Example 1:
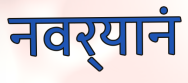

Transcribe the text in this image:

नवर्‍यानं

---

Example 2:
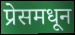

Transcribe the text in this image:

प्रेसमधून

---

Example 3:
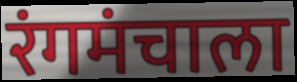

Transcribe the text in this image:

रंगमंचाला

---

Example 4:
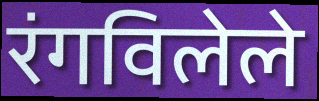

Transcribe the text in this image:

रंगविलेले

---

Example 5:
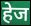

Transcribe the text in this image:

हेज